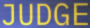
JUDGE